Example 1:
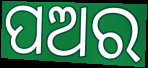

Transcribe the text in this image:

ପଅର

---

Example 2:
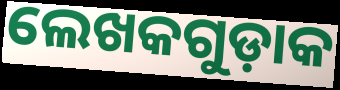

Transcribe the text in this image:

ଲେଖକଗୁଡ଼ାକ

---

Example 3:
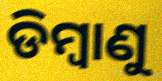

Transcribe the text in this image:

ଡିମ୍ବାଣୁ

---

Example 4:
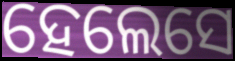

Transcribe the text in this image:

ହେଲେସେ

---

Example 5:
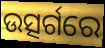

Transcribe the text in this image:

ଉତ୍ସର୍ଗରେ